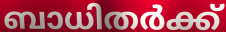
ബാധിതർക്ക്